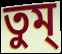
তুম্